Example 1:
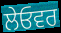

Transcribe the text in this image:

ਲੇਓਵਰ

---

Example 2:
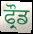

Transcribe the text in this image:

ਫ੍ਰੌਡ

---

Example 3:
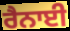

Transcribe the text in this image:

ਰੈਨਾਈ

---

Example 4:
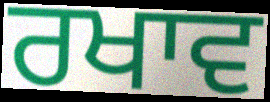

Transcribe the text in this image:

ਰਖਾਵ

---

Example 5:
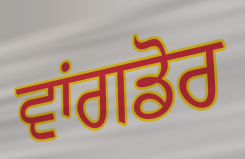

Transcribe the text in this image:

ਵਾਂਗਡੋਰ